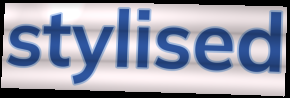
stylised